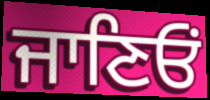
ਜਾਣਿਓਂ